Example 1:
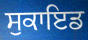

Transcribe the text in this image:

ਸੁਕਾਇਡ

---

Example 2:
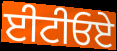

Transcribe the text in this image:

ਈਟੀਓਏ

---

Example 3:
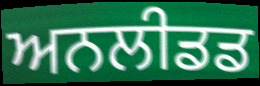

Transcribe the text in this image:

ਅਨਲੀਡਡ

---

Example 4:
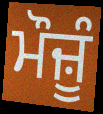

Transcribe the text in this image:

ਮੌਜ਼ੂੰ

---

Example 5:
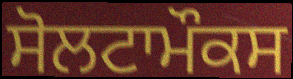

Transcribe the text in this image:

ਸੋਲਟਾਮੌਕਸ